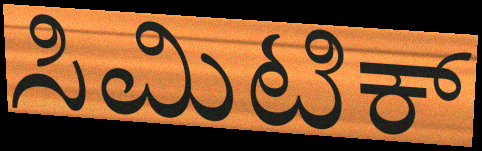
ಸಿಮಿಟಿಕ್